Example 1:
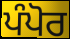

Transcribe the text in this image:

ਪੰਪੋਰ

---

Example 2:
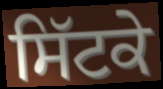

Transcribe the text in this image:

ਸਿੱਟਕੇ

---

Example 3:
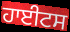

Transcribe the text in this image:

ਹਾਈਟਸ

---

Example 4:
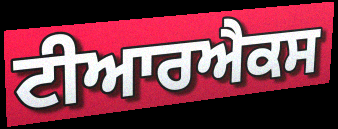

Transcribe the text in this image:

ਟੀਆਰਐਕਸ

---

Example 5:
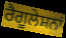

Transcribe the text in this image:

ਰੈਗੂਲੇਸ਼ਨਾਂ